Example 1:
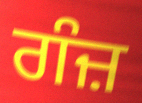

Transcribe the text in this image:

ਗੰਜ਼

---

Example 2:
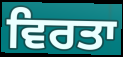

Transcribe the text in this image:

ਵਿਰਤਾ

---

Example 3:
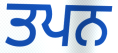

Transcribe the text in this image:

ਤਪਨ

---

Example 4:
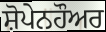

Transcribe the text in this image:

ਸ਼ੋਪੇਨਹੌਅਰ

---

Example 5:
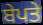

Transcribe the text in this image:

ਬੇਪਤੇ